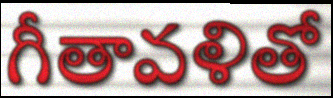
గీతావళితో